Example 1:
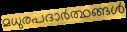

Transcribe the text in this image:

മധുരപദാർത്ഥങ്ങൾ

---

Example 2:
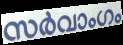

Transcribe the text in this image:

സർവാംഗം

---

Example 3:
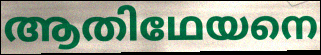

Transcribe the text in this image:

ആതിഥേയനെ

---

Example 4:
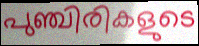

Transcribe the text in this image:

പുഞ്ചിരികളുടെ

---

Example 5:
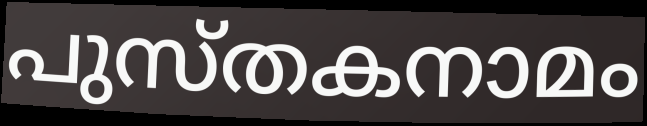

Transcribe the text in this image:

പുസ്തകനാമം